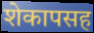
शेकापसह